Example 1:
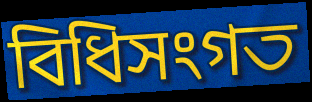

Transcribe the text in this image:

বিধিসংগত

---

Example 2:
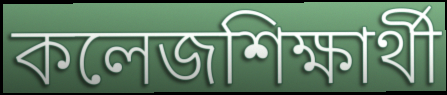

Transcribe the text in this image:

কলেজশিক্ষার্থী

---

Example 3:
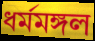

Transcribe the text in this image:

ধর্মমঙ্গল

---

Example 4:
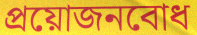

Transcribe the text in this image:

প্রয়োজনবোধ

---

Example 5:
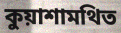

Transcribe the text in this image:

কুয়াশামথিত